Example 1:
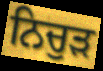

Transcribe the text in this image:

ਨਿਚੁੜ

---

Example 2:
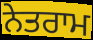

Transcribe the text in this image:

ਨੇਤਰਾਮ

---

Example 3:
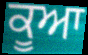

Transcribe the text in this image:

ਕੂਆ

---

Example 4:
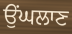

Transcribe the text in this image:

ਉਂਘਲਾਣ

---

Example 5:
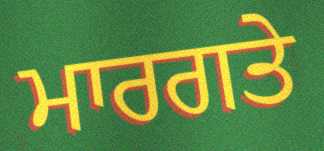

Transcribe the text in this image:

ਮਾਰਗਤੇ